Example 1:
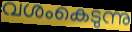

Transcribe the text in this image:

വശംകെടുന്നു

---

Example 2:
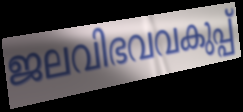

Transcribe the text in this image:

ജലവിഭവവകുപ്പ്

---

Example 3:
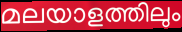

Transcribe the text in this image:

മലയാളത്തിലും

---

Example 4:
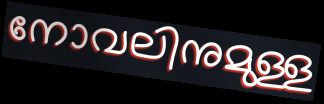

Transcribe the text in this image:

നോവലിനുമുള്ള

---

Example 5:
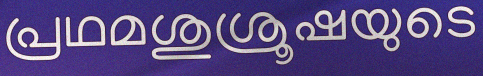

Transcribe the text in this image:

പ്രഥമശുശ്രൂഷയുടെ